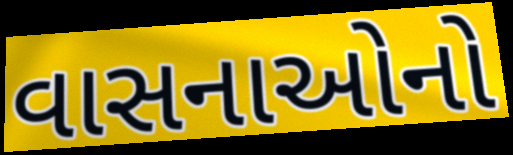
વાસનાઓનો